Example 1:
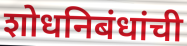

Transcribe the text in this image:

शोधनिबंधांची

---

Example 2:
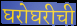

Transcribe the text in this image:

घरोघरीची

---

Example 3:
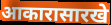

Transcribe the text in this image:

आकारासारखे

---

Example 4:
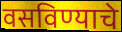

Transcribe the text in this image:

वसविण्याचे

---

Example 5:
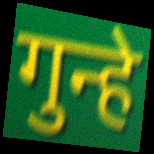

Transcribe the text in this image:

गुन्हे